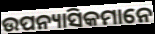
ଉପନ୍ୟାସିକମାନେ